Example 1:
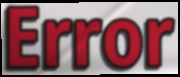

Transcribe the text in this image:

Error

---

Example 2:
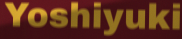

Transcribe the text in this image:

Yoshiyuki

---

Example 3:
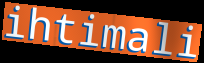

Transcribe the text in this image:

ihtimali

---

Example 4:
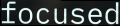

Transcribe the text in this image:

focused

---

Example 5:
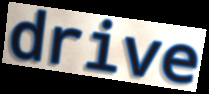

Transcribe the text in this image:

drive